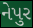
નેપુર